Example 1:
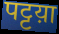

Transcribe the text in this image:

पट्टय़ा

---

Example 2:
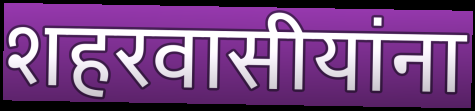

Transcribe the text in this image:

शहरवासीयांना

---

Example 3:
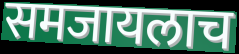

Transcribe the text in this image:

समजायलाच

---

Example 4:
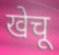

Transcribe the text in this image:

खेचू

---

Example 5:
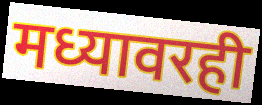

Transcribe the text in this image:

मध्यावरही